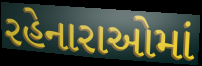
રહેનારાઓમાં